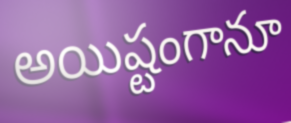
అయిష్టంగానూ